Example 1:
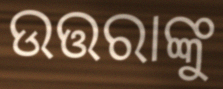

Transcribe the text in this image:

ଉତ୍ତରାଙ୍କୁ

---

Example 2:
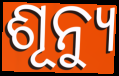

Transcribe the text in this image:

ଶୂନ୍ୟୁ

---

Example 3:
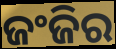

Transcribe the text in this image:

ଜଂଜିର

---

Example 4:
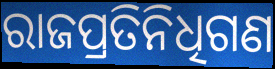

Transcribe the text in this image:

ରାଜପ୍ରତିନିଧିଗଣ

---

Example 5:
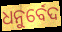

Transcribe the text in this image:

ଧନୁର୍ବେଦ